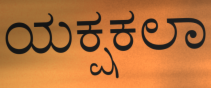
ಯಕ್ಷಕಲಾ